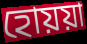
হোয়য়া